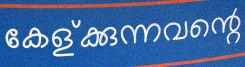
കേള്ക്കുന്നവന്റെ